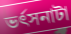
ভর্ৎসনাটা